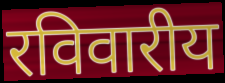
रविवारीय